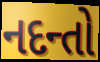
નદન્તો